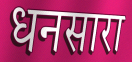
धनसारा